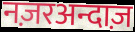
नज़रअन्दाज़